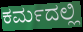
ಕರ್ಮದಲ್ಲಿ